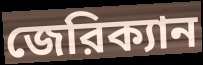
জেরিক্যান